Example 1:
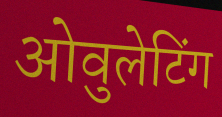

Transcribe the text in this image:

ओवुलेटिंग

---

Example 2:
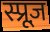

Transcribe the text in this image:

स्प्रूज़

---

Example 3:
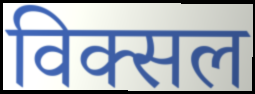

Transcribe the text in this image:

विक्सल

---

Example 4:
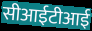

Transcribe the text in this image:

सीआईटीआई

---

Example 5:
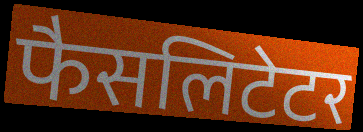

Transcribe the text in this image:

फैसलिटेटर